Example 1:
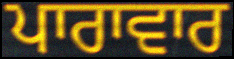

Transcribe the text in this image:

ਪਾਰਾਵਾਰ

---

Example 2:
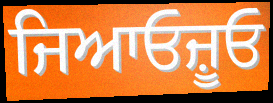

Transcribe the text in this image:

ਜਿਆਓਜ਼ੂਓ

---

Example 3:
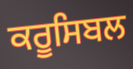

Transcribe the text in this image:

ਕਰੂਸਿਬਲ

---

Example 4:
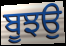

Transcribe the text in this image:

ਬੂਝਉ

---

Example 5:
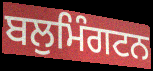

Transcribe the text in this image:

ਬਲੁਮਿੰਗਟਨ